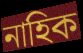
নাহিক